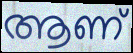
ആണ്